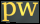
pw